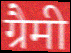
ग्रैमी